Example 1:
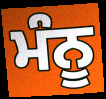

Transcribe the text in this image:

ਮੰਨੂ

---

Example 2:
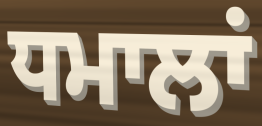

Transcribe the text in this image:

ਧਮਾਲਾਂ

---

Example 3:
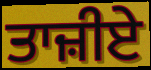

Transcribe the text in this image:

ਤਾਜ਼ੀਏ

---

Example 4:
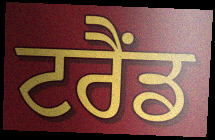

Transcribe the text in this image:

ਟਰੈਂਡ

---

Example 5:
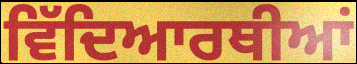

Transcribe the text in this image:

ਵਿੱਦਿਆਰਥੀਆਂ